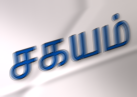
சகயம்